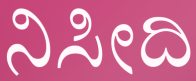
ನಿಸೀದಿ